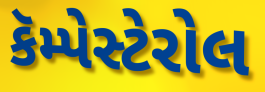
કૅમ્પેસ્ટેરોલ